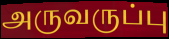
அருவருப்பு